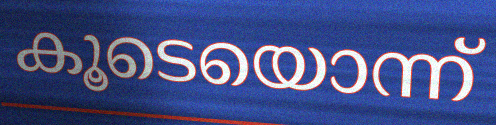
കൂടെയൊന്ന്